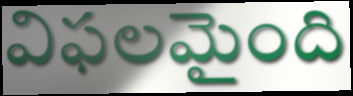
విఫలమైంది